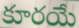
కూరయే